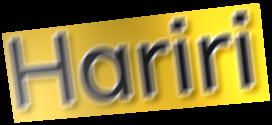
Hariri